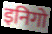
इनिगो